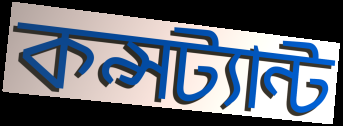
কন্সট্যান্ট